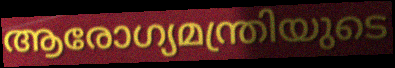
ആരോഗ്യമന്ത്രിയുടെ